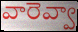
వారెవ్వా